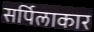
सर्पिलाकार